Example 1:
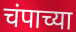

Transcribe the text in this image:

चंपाच्या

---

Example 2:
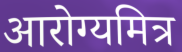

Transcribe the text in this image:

आरोग्यमित्र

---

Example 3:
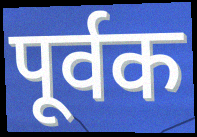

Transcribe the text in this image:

पूर्वक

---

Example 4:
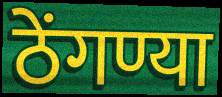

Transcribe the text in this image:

ठेंगण्या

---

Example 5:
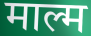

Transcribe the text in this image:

माल्म